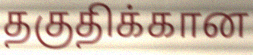
தகுதிக்கான